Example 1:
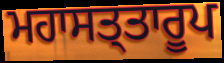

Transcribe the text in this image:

ਮਹਾਸਤ੍ਤਾਰੂਪ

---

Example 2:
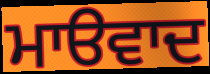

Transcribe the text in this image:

ਮਾੳਵਾਦ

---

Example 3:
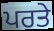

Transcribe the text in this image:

ਪਰਤੇ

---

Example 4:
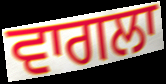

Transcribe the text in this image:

ਵਾਗਲਾ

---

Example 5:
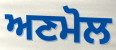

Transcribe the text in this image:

ਅਣਮੋਲ